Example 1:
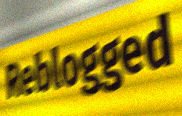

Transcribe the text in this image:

Reblogged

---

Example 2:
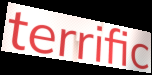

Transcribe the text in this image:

terrific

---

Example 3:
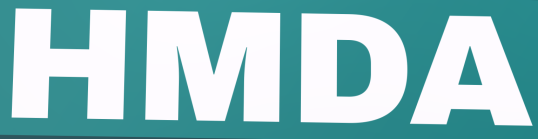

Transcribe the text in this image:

HMDA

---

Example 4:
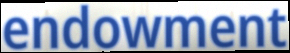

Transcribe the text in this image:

endowment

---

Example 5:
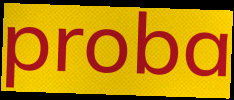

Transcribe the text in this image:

proba